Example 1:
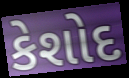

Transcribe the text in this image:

કેશોદ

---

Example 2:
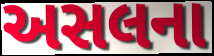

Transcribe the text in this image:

અસલના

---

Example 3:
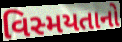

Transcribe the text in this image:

વિસ્મયતાનો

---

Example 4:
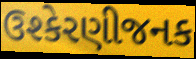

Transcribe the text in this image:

ઉશ્કેરણીજનક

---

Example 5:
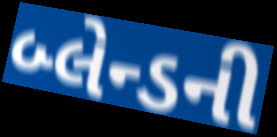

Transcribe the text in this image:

બ્લેન્ડની